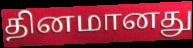
தினமானது